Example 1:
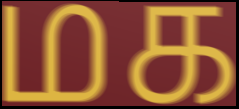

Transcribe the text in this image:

மக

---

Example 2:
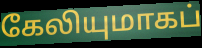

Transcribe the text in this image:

கேலியுமாகப்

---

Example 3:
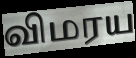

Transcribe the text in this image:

விமரய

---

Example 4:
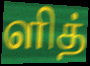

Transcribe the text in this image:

ளித்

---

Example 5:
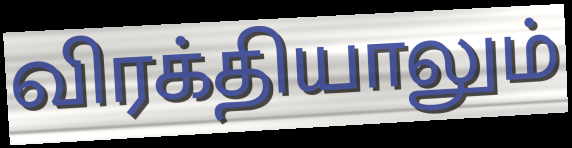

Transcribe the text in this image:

விரக்தியாலும்